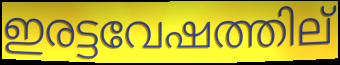
ഇരട്ടവേഷത്തില്